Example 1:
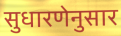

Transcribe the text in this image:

सुधारणेनुसार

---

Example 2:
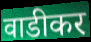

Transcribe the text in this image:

वाडीकर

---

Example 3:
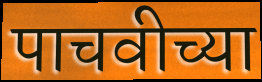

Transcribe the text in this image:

पाचवीच्या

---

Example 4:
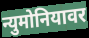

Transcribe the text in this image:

न्युमोनियावर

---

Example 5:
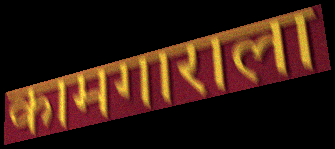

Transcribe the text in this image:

कामगाराला